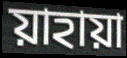
য়াহায়া